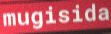
mugisida